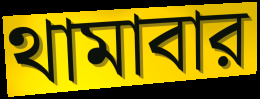
থামাবার